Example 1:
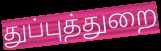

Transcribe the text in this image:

துப்புத்துறை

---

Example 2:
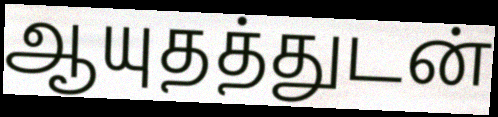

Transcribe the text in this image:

ஆயுதத்துடன்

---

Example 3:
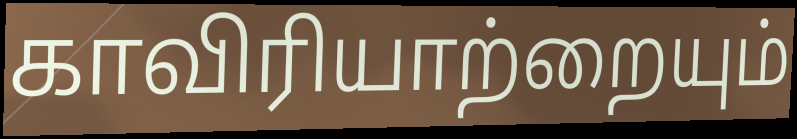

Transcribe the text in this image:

காவிரியாற்றையும்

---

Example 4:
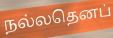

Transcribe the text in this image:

நல்லதெனப்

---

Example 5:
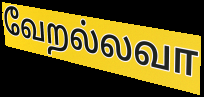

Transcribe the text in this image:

வேறல்லவா